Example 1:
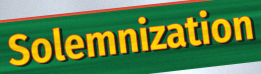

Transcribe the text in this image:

Solemnization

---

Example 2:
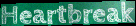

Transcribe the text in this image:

Heartbreak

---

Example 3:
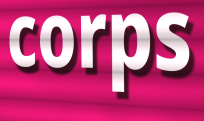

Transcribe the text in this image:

corps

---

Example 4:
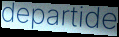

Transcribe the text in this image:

departide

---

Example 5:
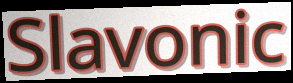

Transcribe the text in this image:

Slavonic